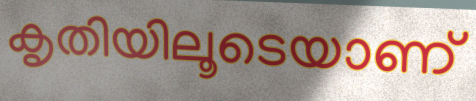
കൃതിയിലൂടെയാണ്